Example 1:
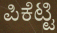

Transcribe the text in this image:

ಪಿಕೆಟ್ಟಿ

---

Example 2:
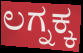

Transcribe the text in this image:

ಲಗ್ನಕ್ಕ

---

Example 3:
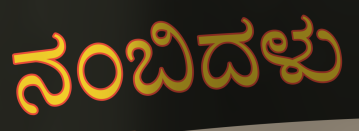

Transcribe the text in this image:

ನಂಬಿದಳು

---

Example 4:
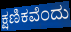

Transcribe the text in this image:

ಕ್ಷಣಿಕವೆಂದು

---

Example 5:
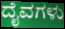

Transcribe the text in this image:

ದೈವಗಳು